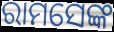
ରାମସେଙ୍କ